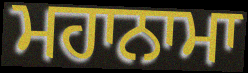
ਮਹਾਨਾਮਾ